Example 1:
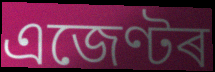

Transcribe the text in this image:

এজেণ্টৰ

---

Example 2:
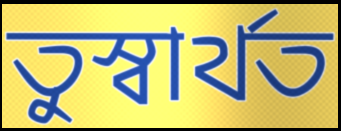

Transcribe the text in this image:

তুস্বাৰ্থত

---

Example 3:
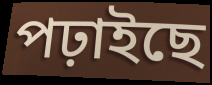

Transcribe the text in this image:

পঢ়াইছে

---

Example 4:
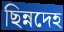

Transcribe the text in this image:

ছিন্নদেহ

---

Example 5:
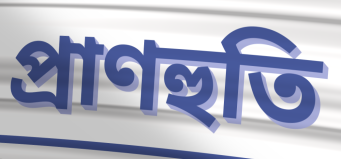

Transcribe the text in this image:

প্ৰাণহুতি